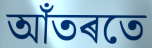
আঁতৰতে